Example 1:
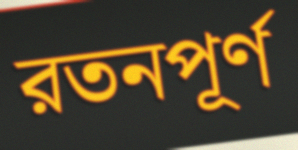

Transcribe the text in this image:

রতনপূর্ণ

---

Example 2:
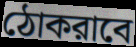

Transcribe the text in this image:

ঠোকরাবে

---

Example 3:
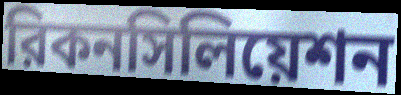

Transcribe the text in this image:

রিকনসিলিয়েশন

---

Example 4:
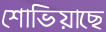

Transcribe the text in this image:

শোভিয়াছে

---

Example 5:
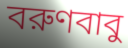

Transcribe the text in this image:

বরুণবাবু